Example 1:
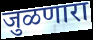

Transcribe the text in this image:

जुळणारा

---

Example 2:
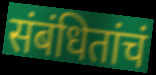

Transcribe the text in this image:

संबंधितांचं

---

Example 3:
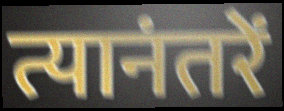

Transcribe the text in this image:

त्यानंतरें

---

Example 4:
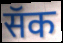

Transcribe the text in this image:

सॅक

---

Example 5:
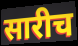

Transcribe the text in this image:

सारीच